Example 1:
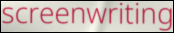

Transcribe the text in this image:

screenwriting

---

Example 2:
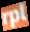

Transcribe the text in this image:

rpl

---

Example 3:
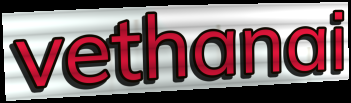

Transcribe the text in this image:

vethanai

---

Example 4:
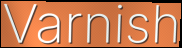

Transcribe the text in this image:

Varnish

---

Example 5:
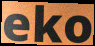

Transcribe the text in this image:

eko